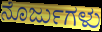
ನೊರ್ಜುಗಳು